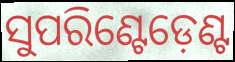
ସୁପରିଣ୍ଟେଡ଼େଣ୍ଟ